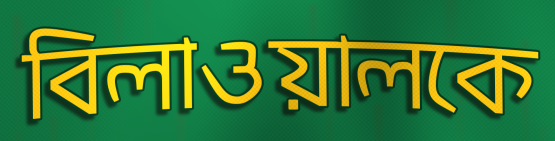
বিলাওয়ালকে